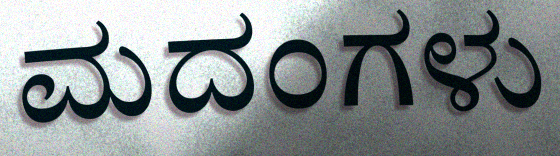
ಮದಂಗಳು